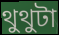
থুথুটা